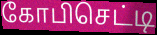
கோபிசெட்டி